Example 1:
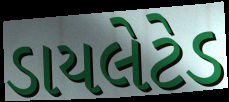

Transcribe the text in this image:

ડાયલેટેડ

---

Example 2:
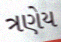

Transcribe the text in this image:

ત્રણેય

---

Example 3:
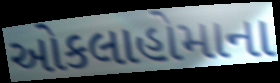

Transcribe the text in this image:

ઓકલાહોમાના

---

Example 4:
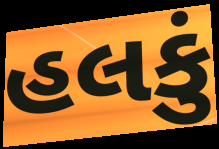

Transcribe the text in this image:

હલકું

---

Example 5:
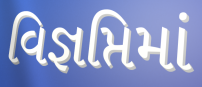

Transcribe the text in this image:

વિજ્ઞપ્તિમાં